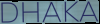
DHAKA